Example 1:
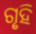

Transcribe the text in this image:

ଗୃହି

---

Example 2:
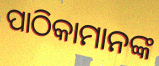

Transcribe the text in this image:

ପାଠିକାମାନଙ୍କ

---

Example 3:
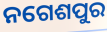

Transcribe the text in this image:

ନଗେଶପୁର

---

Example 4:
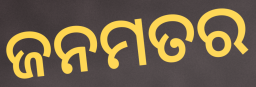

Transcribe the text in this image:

ଜନମତର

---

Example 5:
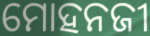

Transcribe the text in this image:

ମୋହନଜୀ